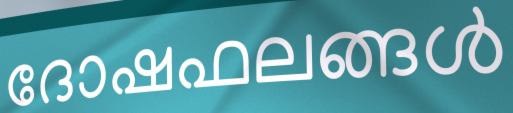
ദോഷഫലങ്ങൾ